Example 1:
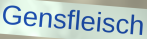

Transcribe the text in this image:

Gensfleisch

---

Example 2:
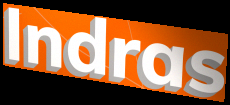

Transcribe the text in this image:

Indras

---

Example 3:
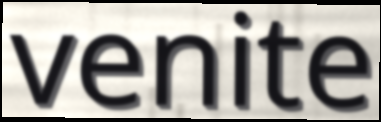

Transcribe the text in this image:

venite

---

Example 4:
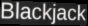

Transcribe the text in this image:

Blackjack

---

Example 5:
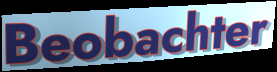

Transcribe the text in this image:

Beobachter